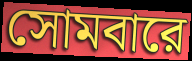
সোমবারে